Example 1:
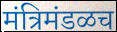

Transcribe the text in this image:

मंत्रिमंडळच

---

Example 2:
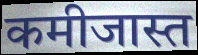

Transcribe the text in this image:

कमीजास्त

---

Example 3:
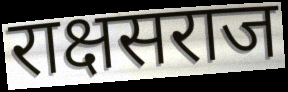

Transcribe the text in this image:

राक्षसराज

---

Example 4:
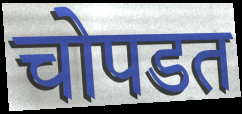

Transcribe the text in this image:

चोपडत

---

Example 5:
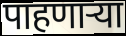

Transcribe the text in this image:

पाहणाऱ्या